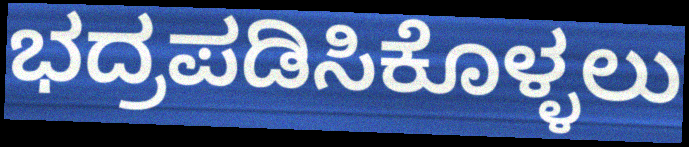
ಭದ್ರಪಡಿಸಿಕೊಳ್ಳಲು